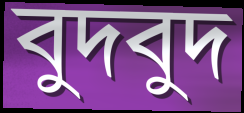
বুদবুদ